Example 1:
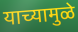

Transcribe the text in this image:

याच्यामुळे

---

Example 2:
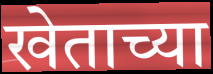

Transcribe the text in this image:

खेताच्या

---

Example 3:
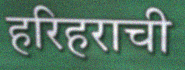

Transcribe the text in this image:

हरिहराची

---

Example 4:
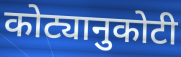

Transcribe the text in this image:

कोट्यानुकोटी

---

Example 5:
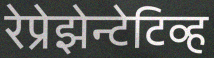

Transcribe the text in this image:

रेप्रेझेन्टेटिव्ह